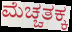
ಮೆಚ್ಚತಕ್ಕ